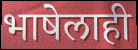
भाषेलाही